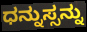
ಧನ್ನುಸ್ಸನ್ನು